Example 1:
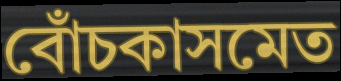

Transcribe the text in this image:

বোঁচকাসমেত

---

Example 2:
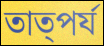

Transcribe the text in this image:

তাত্পর্য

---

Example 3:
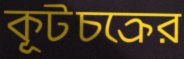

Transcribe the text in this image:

কূটচক্রের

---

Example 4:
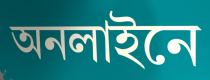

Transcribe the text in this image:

অনলাইনে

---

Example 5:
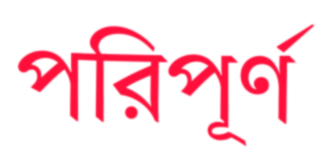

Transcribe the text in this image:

পরিপূর্ণ